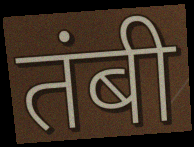
तंबी